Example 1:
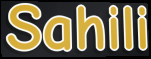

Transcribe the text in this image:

Sahili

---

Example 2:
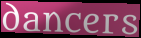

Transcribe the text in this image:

dancers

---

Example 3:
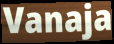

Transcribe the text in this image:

Vanaja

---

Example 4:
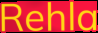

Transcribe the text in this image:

Rehla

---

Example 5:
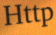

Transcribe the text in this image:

Http